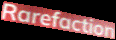
Rarefaction